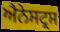
ਐਨੇਸਟ੍ਰਸ